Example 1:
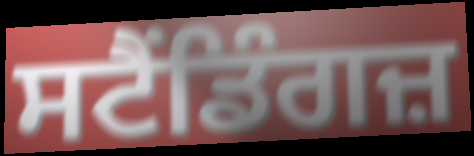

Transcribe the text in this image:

ਸਟੈਂਡਿੰਗਜ਼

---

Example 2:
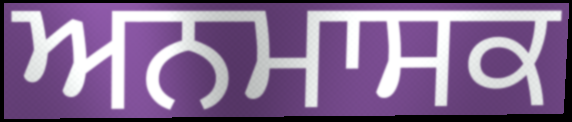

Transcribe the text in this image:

ਅਨਮਾਸਕ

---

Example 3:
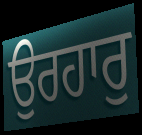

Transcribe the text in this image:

ਉਰਹਾਰੁ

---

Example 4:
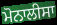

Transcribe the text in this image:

ਮੋਨਾਲੀਸਾ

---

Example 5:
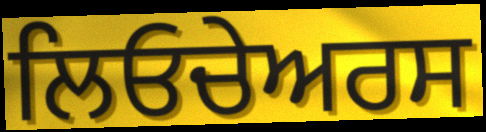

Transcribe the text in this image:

ਲਿਓਚੇਅਰਸ